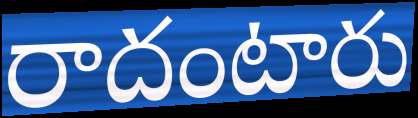
రాదంటారు